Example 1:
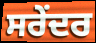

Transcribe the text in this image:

ਸਰੇਂਦਰ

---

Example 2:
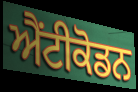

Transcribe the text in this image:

ਐਂਟੀਕੋਡਨ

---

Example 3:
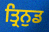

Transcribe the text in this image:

ਤ੍ਰਿਨੁਡ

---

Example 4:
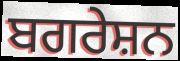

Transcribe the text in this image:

ਬਗਰੇਸ਼ਨ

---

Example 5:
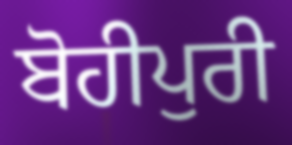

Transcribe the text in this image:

ਬੋਹੀਪੁਰੀ